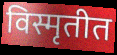
विस्मृतीत